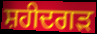
ਸ਼ਹੀਦਗੜ